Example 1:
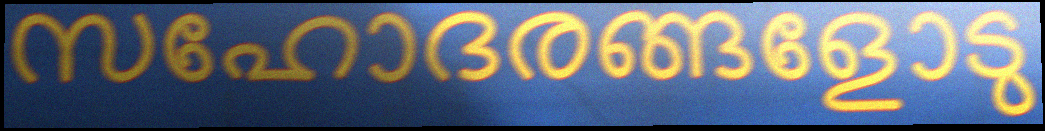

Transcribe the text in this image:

സഹോദരങ്ങളോടു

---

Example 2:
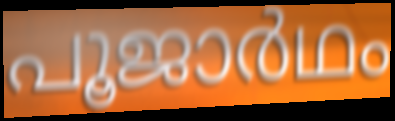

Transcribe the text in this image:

പൂജാർഥം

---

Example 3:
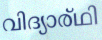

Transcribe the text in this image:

വിദ്യാര്ഥി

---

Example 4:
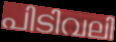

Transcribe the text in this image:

പിടിവലി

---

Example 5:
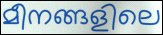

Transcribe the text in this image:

മീനങ്ങളിലെ